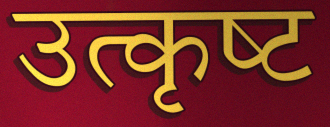
उत्कृष्‍ट